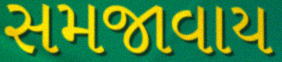
સમજાવાય